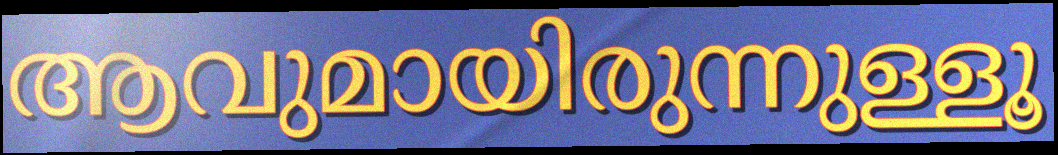
ആവുമായിരുന്നുള്ളൂ